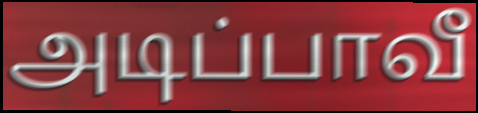
அடிப்பாவீ